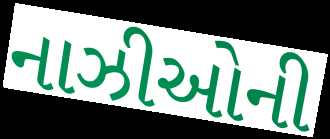
નાઝીઓની